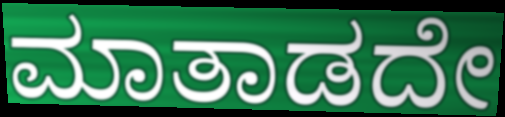
ಮಾತಾಡದೇ